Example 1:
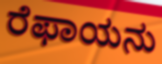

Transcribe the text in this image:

ರೆಫಾಯನು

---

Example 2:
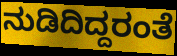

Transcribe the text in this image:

ನುಡಿದಿದ್ದರಂತೆ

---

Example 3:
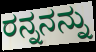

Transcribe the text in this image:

ರನ್ನನನ್ನು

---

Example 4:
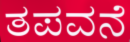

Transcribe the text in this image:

ತಪವನೆ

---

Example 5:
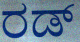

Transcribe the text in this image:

ರಡ್